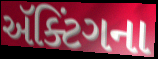
ઍક્ટિંગના